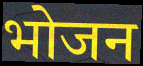
भोजन